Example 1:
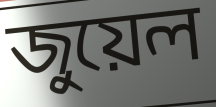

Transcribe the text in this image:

জুয়েল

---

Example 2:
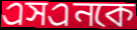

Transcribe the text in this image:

এসএনকে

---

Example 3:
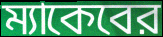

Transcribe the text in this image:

ম্যাকেবের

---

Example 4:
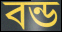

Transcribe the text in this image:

বন্ড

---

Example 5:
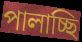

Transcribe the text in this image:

পালাচ্ছি